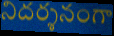
నిదర్శనంగా